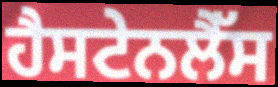
ਹੈਸਟੇਨਲੈੱਸ